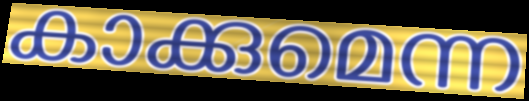
കാക്കുമെന്ന